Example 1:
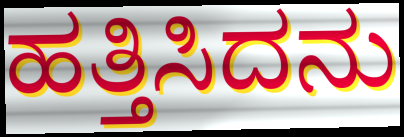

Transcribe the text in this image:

ಹತ್ತಿಸಿದನು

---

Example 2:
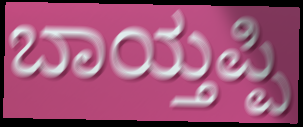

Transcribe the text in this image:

ಬಾಯ್ತಪ್ಪಿ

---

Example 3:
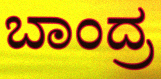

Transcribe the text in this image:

ಬಾಂದ್ರ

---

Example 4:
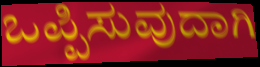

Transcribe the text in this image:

ಒಪ್ಪಿಸುವುದಾಗಿ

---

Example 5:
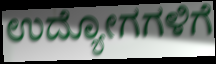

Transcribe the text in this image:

ಉದ್ಯೋಗಗಳಿಗೆ